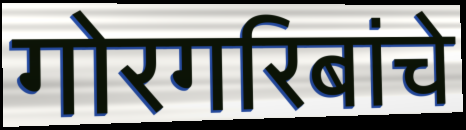
गोरगरिबांचे